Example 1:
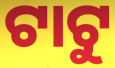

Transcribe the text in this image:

ଟାଟୁ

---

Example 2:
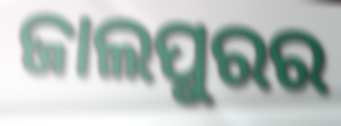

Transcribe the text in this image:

ଜାଲପୁରର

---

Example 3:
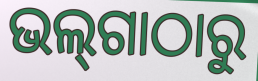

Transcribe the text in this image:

ଭଲ୍‌ଗାଠାରୁ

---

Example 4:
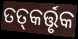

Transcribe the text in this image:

ତତ୍‌କର୍ତ୍ତୃକ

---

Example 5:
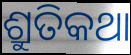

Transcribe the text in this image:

ଶ୍ରୁତିକଥା